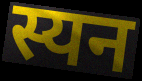
स्यन